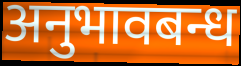
अनुभावबन्ध